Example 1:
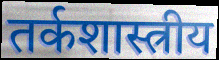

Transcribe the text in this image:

तर्कशास्त्रीय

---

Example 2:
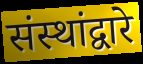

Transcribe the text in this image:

संस्थांद्वारे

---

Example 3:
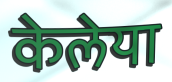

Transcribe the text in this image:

केलेया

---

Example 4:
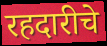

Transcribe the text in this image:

रहदारीचे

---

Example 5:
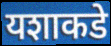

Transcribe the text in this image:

यशाकडे